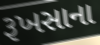
રૂખસાના